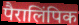
पैरालिंपिक